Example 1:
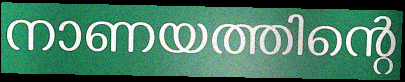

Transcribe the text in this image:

നാണയത്തിന്റെ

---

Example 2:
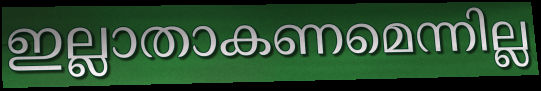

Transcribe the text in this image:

ഇല്ലാതാകണമെന്നില്ല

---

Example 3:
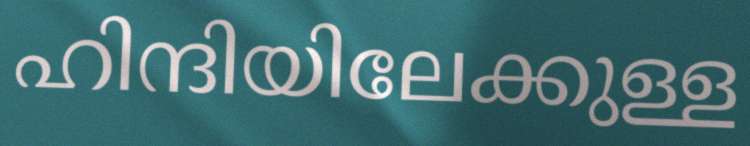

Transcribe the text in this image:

ഹിന്ദിയിലേക്കുള്ള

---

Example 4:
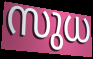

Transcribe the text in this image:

സുധ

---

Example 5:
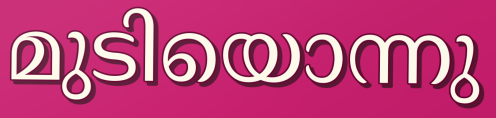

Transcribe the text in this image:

മുടിയൊന്നു